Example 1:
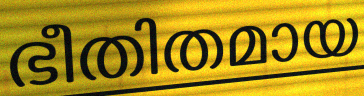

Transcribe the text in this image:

ഭീതിതമായ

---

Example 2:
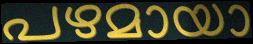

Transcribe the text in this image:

പഴമായാ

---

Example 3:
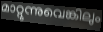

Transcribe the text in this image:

മാറ്റുന്നുവെങ്കിലും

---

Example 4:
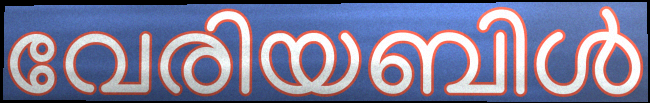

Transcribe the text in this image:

വേരിയബിൾ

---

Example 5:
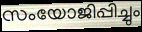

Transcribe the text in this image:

സംയോജിപ്പിച്ചും